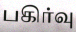
பகிர்வு